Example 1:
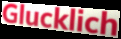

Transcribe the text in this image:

Glucklich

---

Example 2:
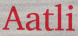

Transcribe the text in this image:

Aatli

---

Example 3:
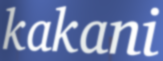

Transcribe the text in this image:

kakani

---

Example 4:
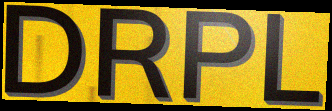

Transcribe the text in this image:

DRPL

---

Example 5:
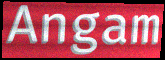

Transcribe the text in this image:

Angam